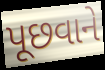
પૂછવાને